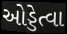
ઓડ્ડેત્વા